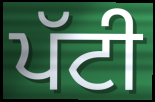
ਪੱਟੀ